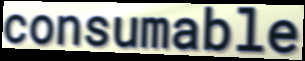
consumable